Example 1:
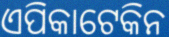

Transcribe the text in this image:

ଏପିକାଟେକିନ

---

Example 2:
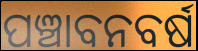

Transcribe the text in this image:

ପଞ୍ଚାବନବର୍ଷ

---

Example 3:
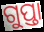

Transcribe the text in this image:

ଗୁପ୍ତା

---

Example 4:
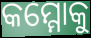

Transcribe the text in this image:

କମ୍ମୋକୁ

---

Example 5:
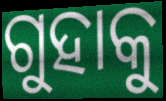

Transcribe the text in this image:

ଗୁହାକୁ